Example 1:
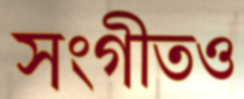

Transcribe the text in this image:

সংগীতও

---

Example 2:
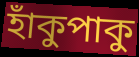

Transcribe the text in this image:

হাঁকুপাকু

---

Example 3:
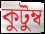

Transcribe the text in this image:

কুটুম্ব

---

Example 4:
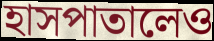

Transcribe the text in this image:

হাসপাতালেও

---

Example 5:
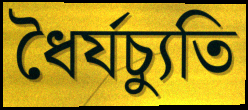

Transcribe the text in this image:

ধৈর্যচ্যুতি